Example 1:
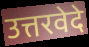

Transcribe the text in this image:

उत्तरवेदे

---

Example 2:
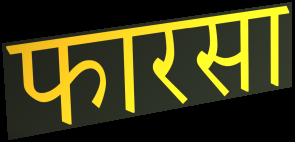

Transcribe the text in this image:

फारसा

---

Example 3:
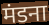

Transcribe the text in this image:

मंडना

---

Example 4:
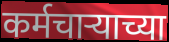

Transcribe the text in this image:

कर्मचाऱ्याच्या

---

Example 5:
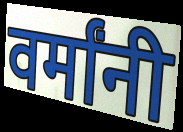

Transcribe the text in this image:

वर्मांनी